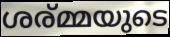
ശര്മ്മയുടെ